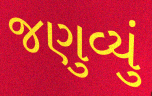
જણુવ્યું